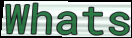
Whats